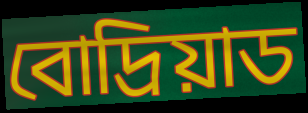
বোদ্রিয়াড